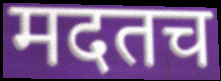
मदतच